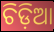
ଚିଡ଼ିଆ